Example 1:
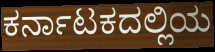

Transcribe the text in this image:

ಕರ್ನಾಟಕದಲ್ಲಿಯ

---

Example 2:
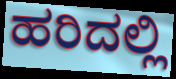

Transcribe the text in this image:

ಹರಿದಲ್ಲಿ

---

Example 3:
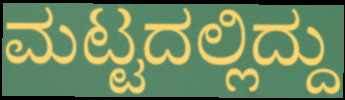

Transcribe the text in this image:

ಮಟ್ಟದಲ್ಲಿದ್ದು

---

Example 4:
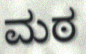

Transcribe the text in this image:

ಮಠ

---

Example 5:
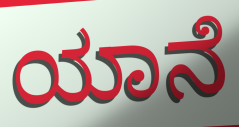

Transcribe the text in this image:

ಯಾನೆ